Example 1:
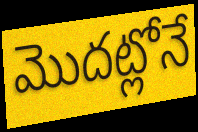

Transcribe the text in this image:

మొదట్లోనే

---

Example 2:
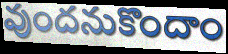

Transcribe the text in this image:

వుందనుకొందాం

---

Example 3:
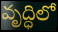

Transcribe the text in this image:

వృద్ధిలో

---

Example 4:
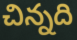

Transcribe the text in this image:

చిన్నది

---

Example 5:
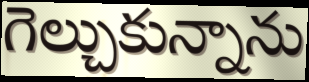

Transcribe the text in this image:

గెల్చుకున్నాను